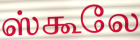
ஸ்கூலே